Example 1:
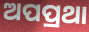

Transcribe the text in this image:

ଅପପ୍ରଥା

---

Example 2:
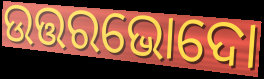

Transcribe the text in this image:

ଉତ୍ତରଭୋଦୋ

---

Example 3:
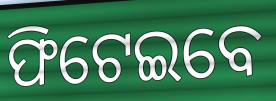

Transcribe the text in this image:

ଫିଟେଇବେ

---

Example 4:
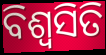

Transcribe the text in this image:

ବିଶ୍ଵସିତି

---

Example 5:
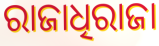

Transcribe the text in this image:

ରାଜାଧିରାଜା